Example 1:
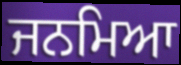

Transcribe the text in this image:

ਜਨਮਿਆ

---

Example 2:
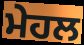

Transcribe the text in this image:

ਮੇਹਲ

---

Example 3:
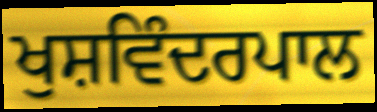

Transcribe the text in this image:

ਖੁਸ਼ਵਿੰਦਰਪਾਲ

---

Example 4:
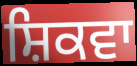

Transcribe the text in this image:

ਸ਼ਿਕਵਾ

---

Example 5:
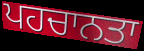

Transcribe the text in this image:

ਪਹਚਾਨਤਾ